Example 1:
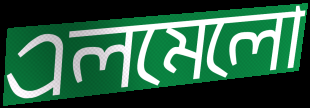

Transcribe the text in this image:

এলমেলো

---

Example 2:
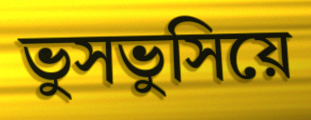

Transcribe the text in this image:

ভুসভুসিয়ে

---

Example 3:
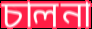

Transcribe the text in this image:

চালনা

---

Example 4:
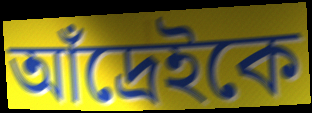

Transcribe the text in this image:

আঁদ্রেইকে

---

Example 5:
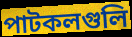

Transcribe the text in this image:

পাটকলগুলি